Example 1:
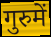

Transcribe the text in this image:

गुरुमें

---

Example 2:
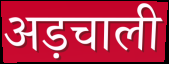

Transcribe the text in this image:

अड़चाली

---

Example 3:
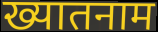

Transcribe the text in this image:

ख्यातनाम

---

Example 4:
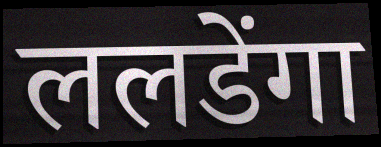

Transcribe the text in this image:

ललडेंगा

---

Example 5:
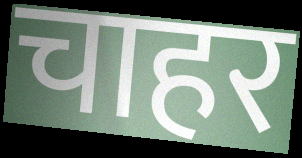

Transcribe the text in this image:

चाहर